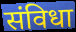
संविधा